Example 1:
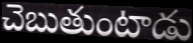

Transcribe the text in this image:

చెబుతుంటాడు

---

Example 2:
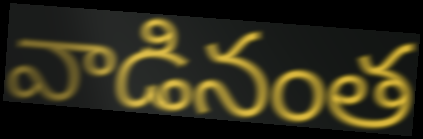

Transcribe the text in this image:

వాడినంత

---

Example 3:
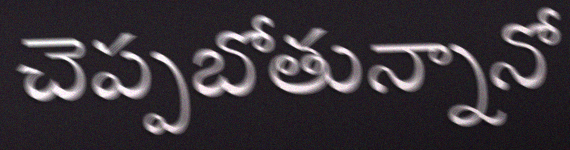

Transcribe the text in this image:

చెప్పబోతున్నానో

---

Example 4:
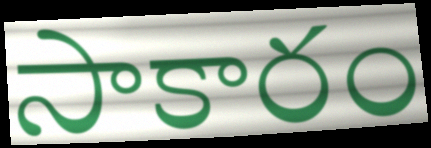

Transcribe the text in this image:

సాకారం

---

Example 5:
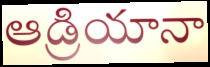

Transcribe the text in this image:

ఆడ్రియానా